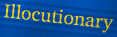
Illocutionary